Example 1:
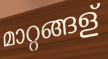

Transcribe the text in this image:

മാറ്റങ്ങള്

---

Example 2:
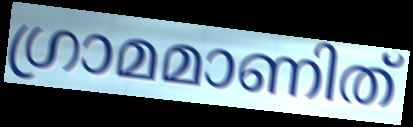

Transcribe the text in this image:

ഗ്രാമമാണിത്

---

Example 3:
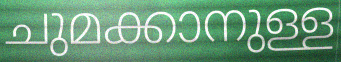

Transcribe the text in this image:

ചുമക്കാനുള്ള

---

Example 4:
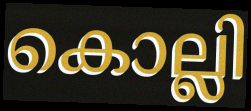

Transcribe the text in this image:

കൊല്ലി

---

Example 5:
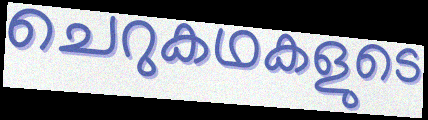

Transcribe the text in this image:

ചെറുകഥകളുടെ